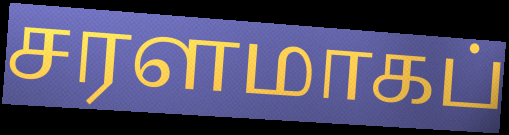
சரளமாகப்